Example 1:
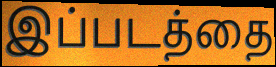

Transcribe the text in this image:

இப்படத்தை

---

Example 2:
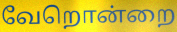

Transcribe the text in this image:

வேறொன்றை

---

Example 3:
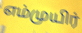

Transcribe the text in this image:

எம்முயிர்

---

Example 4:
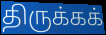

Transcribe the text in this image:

திருக்கக்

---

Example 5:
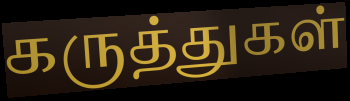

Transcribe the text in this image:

கருத்துகள்